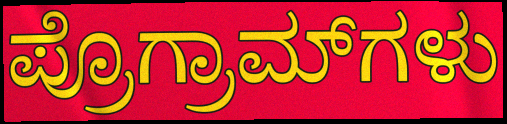
ಪ್ರೊಗ್ರಾಮ್‌ಗಳು